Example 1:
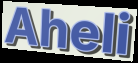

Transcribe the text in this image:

Aheli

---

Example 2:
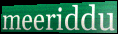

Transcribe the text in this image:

meeriddu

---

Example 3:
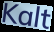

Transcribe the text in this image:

Kalt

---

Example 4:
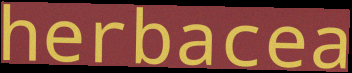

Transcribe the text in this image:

herbacea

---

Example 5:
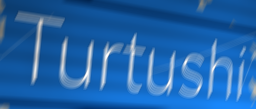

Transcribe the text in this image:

Turtushi